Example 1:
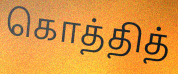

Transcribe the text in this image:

கொத்தித்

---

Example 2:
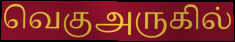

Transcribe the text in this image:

வெகுஅருகில்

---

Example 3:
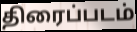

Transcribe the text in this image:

திரைப்படம்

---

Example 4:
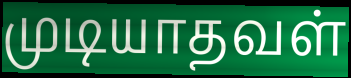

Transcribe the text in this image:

முடியாதவள்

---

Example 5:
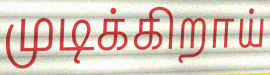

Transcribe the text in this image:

முடிக்கிறாய்